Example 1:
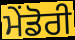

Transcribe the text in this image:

ਮੇਂਡੋਰੀ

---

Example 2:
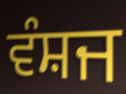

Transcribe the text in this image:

ਵੰਸ਼ਜ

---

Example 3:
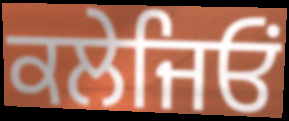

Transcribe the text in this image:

ਕਲੇਜਿਓਂ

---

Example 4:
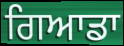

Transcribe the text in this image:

ਗਿਆਡਾ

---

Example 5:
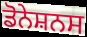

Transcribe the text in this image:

ਡੋਨੇਸ਼ਨਸ